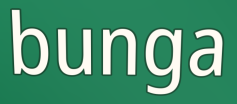
bunga